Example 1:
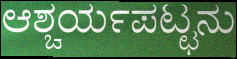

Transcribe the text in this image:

ಆಶ್ಚರ್ಯಪಟ್ಟನು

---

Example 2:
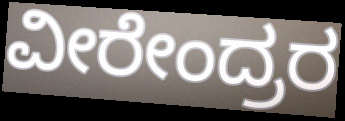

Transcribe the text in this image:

ವೀರೇಂದ್ರರ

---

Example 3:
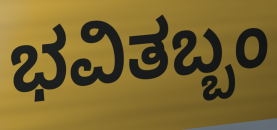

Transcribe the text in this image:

ಭವಿತಬ್ಬಂ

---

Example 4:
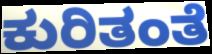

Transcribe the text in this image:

ಕುರಿತಂತೆ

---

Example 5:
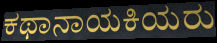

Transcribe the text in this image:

ಕಥಾನಾಯಕಿಯರು